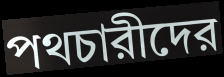
পথচারীদের